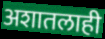
अशातलाही